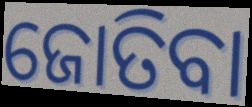
ଜୋତିବା